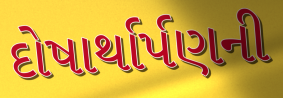
દોષાર્થાર્પણની